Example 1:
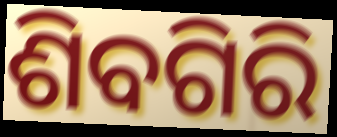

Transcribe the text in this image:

ଶିବଗିରି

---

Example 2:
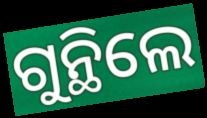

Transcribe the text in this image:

ଗୁନ୍ଥିଲେ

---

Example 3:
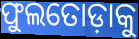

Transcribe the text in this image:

ଫୁଲତୋଡ଼ାକୁ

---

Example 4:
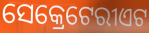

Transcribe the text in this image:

ସେକ୍ରେଟେରୀଏଟ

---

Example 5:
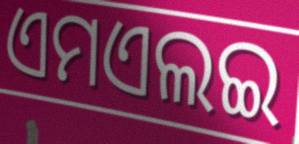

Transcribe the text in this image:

ଏମଏଲଇ